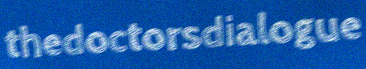
thedoctorsdialogue